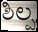
ಶಿಲ್ಪ